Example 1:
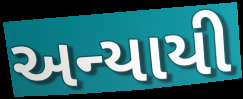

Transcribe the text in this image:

અન્યાયી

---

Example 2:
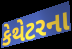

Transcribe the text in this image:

કેથેટરના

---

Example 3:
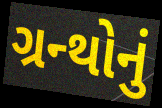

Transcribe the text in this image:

ગ્રન્થોનું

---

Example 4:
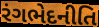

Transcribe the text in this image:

રંગભેદનીતિ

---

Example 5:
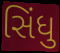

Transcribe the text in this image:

સિંધુ